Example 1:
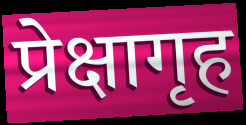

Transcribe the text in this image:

प्रेक्षागृह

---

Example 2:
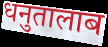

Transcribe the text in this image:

धनुतालाब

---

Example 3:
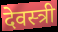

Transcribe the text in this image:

देवस्त्री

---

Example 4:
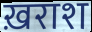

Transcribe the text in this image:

ख़राश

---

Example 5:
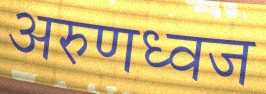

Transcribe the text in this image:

अरुणध्वज